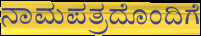
ನಾಮಪತ್ರದೊಂದಿಗೆ